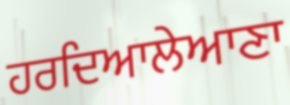
ਹਰਦਿਆਲੇਆਣਾ